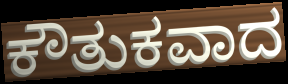
ಕೌತುಕವಾದ